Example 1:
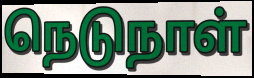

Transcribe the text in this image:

நெடுநாள்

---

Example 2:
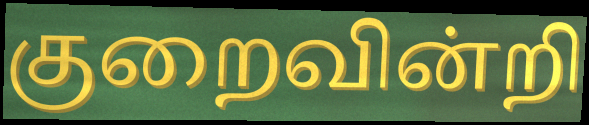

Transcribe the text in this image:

குறைவின்றி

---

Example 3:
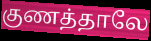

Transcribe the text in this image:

குணத்தாலே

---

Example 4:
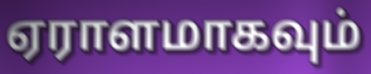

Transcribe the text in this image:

ஏராளமாகவும்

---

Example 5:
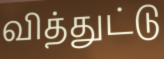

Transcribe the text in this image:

வித்துட்டு